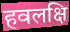
हवलक्षि